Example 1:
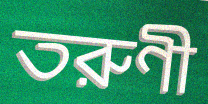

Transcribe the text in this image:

তৰুণী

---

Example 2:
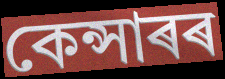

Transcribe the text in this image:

কেন্সাৰৰ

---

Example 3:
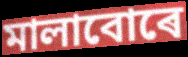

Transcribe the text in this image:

মালাবোৰে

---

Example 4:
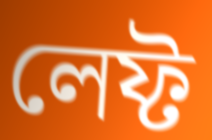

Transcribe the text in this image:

লেফ্ট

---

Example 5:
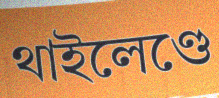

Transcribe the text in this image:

থাইলেণ্ডে